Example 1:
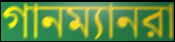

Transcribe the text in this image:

গানম্যানরা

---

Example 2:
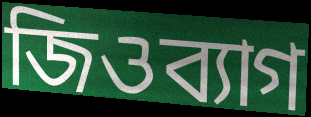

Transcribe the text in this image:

জিওব্যাগ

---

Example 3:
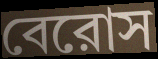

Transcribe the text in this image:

বেরোস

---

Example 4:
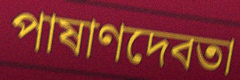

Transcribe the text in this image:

পাষাণদেবতা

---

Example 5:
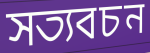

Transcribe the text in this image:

সত্যবচন